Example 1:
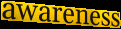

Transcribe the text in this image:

awareness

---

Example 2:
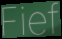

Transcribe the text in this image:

Fief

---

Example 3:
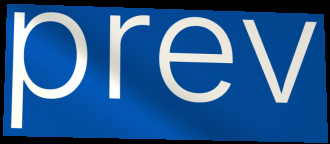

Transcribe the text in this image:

prev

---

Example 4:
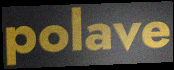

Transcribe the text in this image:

polave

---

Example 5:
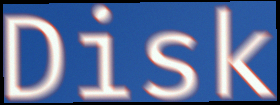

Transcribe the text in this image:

Disk